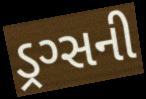
ડ્રગ્સની